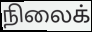
நிலைக்